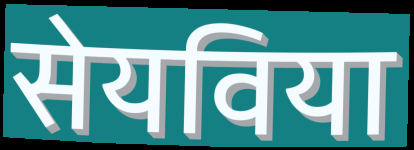
सेयविया